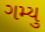
ગમ્યુ